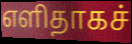
எளிதாகச்